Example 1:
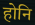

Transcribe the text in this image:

होनि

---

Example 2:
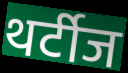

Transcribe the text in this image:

थर्टीज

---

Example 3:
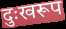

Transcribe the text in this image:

दुःखरूप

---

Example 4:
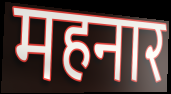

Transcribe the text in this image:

महनार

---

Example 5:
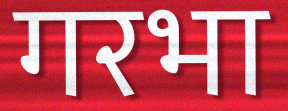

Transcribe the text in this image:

गरभा